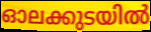
ഓലക്കുടയിൽ